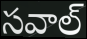
సవాల్